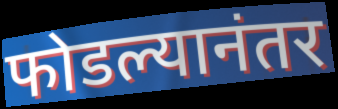
फोडल्यानंतर